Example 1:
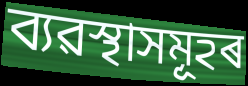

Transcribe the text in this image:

ব্যৱস্থাসমূহৰ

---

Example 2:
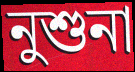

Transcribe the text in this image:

নুশুনা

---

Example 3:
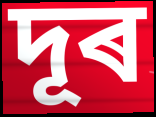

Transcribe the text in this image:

দূৰ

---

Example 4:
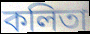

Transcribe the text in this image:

কলিতা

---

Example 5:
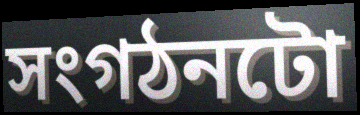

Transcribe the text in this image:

সংগঠনটো